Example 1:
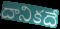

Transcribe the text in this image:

దానికదే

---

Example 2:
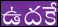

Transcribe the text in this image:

ఉదకే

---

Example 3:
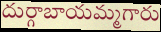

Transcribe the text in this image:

దుర్గాబాయమ్మగారు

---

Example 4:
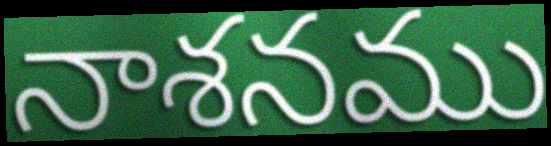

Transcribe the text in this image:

నాశనము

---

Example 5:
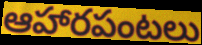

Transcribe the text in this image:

ఆహారపంటలు